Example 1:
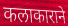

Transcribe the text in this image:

कलाकाराने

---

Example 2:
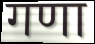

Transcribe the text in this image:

गणा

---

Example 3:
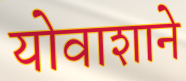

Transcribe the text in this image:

योवाशाने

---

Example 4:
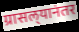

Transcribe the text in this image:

ग्रासल्यानंतर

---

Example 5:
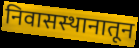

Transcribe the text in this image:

निवासस्थानातून